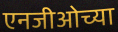
एनजीओच्या